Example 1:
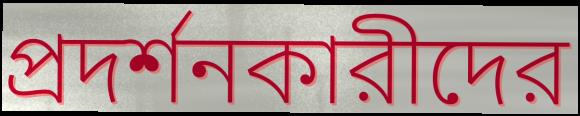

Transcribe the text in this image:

প্রদর্শনকারীদের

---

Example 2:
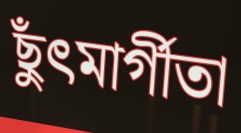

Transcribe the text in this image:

ছুঁৎমার্গীতা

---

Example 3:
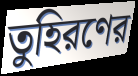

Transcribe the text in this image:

তুহিরণের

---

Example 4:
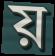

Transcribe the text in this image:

য়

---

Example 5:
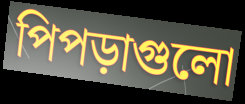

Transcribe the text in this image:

পিপড়াগুলো